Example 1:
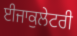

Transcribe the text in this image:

ਈਜਾਕੁਲੇਟਰੀ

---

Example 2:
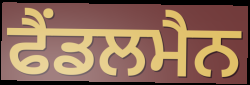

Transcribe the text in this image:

ਫੈਂਡਲਮੈਨ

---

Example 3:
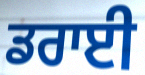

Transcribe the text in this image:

ਡਰਾਈ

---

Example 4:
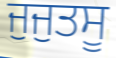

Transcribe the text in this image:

ਜੁਜੁਤਸੂ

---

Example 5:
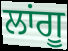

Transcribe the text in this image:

ਲਾਂਗੂ